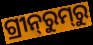
ଗ୍ରୀନ୍‌ରୁମ୍‌ରୁ